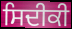
ਸਿਦੀਕੀ